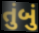
તુંબું